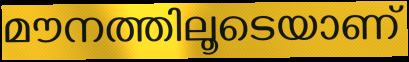
മൗനത്തിലൂടെയാണ്